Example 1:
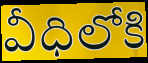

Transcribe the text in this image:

వీధిలోకి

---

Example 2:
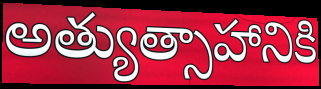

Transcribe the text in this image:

అత్యుత్సాహానికి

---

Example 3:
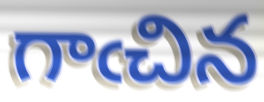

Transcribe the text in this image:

గాఁచిన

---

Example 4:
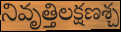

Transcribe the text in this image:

నివృత్తిలక్షణశ్చ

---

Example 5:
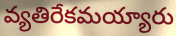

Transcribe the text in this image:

వ్యతిరేకమయ్యారు